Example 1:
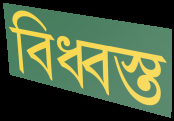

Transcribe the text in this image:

বিধ্বস্ত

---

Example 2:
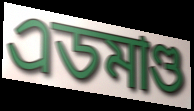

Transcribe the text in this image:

এডমাণ্ড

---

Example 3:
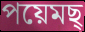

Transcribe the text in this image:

পয়েমছ্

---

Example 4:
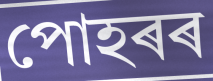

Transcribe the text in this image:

পোহৰৰ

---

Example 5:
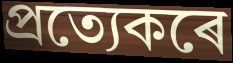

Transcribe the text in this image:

প্ৰত্যেকৰে